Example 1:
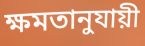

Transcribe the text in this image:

ক্ষমতানুযায়ী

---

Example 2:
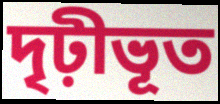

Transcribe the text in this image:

দৃঢ়ীভূত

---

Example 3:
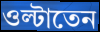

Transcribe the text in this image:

ওল্টাতেন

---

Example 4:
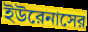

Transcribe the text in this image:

ইউরেনাসের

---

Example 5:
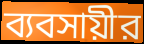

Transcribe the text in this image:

ব্যবসায়ীর